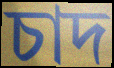
চাদ